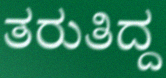
ತರುತಿದ್ದ